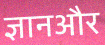
ज्ञानऔर